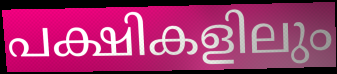
പക്ഷികളിലും